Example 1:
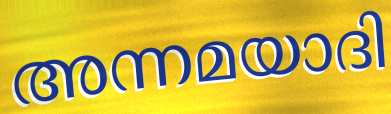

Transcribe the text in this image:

അന്നമയാദി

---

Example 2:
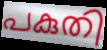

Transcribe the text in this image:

പകുതി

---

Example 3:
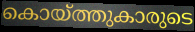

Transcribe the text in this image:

കൊയ്ത്തുകാരുടെ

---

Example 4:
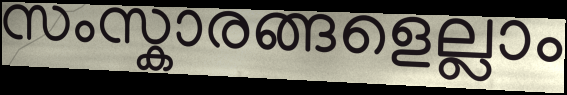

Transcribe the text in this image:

സംസ്കാരങ്ങളെല്ലാം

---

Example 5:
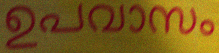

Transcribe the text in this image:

ഉപവാസം